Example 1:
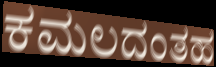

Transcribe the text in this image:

ಕಮಲದಂತಹ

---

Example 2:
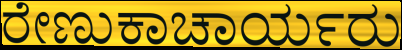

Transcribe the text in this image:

ರೇಣುಕಾಚಾರ್ಯರು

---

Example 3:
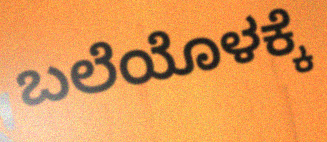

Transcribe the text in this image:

ಬಲೆಯೊಳಕ್ಕೆ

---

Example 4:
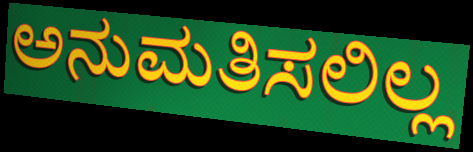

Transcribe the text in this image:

ಅನುಮತಿಸಲಿಲ್ಲ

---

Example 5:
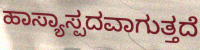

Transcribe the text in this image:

ಹಾಸ್ಯಾಸ್ಪದವಾಗುತ್ತದೆ